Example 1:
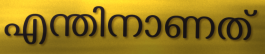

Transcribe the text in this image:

എന്തിനാണത്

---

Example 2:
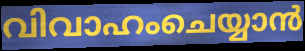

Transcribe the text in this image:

വിവാഹംചെയ്യാൻ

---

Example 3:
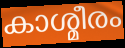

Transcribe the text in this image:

കാശ്മീരം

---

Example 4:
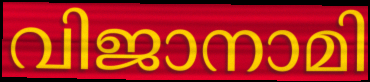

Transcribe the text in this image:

വിജാനാമി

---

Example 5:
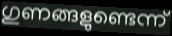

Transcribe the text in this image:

ഗുണങ്ങളുണ്ടെന്ന്